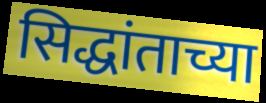
सिद्धांताच्या